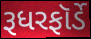
રૂધરફૉર્ડે